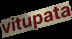
vitupata